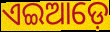
ଏଇଆଡ଼େ